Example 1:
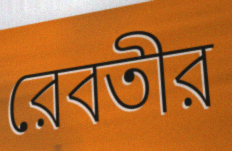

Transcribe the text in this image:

রেবতীর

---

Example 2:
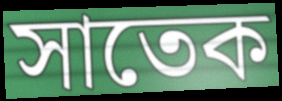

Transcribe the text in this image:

সাতেক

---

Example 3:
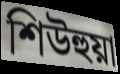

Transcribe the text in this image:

শিউহুয়া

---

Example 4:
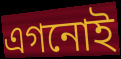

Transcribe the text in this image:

এগনোই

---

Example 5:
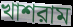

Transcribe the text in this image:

খাশরাম